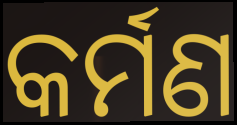
କର୍ମଣ